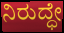
ನಿರುದ್ಧೇ